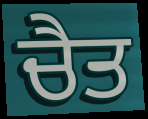
ਚੈਤ